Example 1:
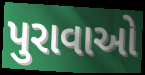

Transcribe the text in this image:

પુરાવાઓ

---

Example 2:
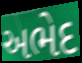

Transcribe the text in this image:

અભેદ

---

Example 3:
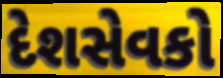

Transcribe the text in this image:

દેશસેવકો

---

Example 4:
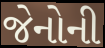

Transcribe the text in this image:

જેનોની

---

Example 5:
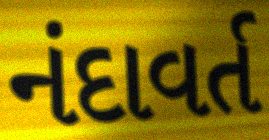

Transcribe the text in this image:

નંદાવર્ત